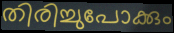
തിരിച്ചുപോക്കും